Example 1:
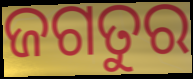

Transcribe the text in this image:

ଜଗତୁର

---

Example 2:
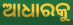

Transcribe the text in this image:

ଆଧାରକୁ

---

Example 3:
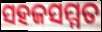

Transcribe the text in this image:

ସହଜସମ୍ମତ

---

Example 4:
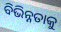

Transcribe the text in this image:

ବିଭିନ୍ନତାକୁ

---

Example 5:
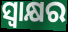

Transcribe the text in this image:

ସ୍ଵାକ୍ଷର